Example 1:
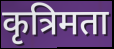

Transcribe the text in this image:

कृत्रिमता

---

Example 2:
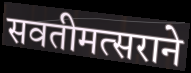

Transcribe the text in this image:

सवतीमत्सराने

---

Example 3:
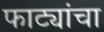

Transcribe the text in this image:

फाट्यांचा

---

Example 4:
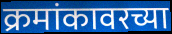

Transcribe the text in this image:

क्रमांकावरच्या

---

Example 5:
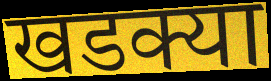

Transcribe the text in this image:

खडक्या